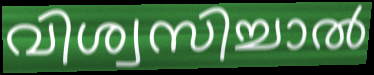
വിശ്വസിച്ചാൽ